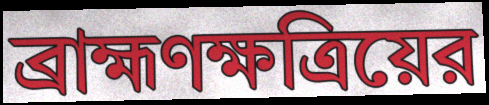
ব্রাহ্মণক্ষত্রিয়ের